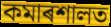
কমাৰশালত